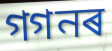
গগনৰ